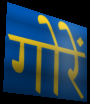
गोरें